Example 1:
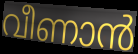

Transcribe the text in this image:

വീണാൻ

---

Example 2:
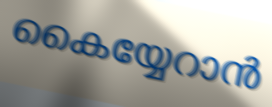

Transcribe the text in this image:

കൈയ്യേറാൻ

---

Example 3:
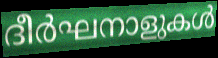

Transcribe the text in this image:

ദീർഘനാളുകൾ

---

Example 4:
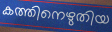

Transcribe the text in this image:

കത്തിനെഴുതിയ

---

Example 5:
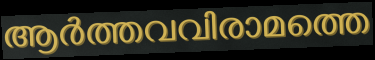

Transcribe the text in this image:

ആർത്തവവിരാമത്തെ